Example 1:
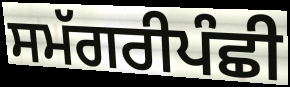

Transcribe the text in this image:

ਸਮੱਗਰੀਪੰਛੀ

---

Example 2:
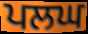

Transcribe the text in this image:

ਪਲਘ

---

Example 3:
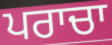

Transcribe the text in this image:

ਪਰਾਚਾ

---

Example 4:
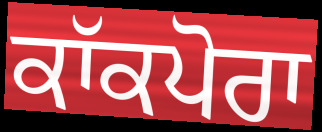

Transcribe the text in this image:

ਕਾੱਕਪੋਰਾ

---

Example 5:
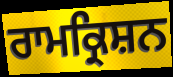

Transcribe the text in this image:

ਰਾਮਕ੍ਰਿਸ਼ਨ